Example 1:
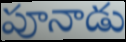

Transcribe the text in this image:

పూనాడు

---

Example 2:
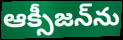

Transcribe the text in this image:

ఆక్సీజన్‌ను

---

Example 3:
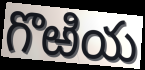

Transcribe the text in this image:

గొఱియ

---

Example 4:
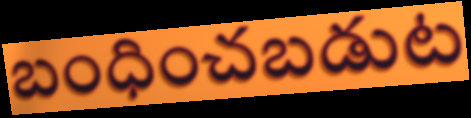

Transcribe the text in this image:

బంధించబడుట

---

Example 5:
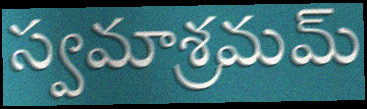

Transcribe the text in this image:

స్వమాశ్రమమ్